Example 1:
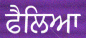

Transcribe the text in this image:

ਫੈਲਿਆ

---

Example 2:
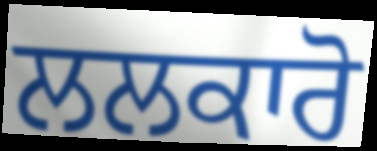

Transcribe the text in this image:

ਲਲਕਾਰੋ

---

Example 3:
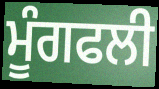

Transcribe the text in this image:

ਮੂੰਗਫਲੀ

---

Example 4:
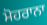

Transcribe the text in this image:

ਮੋਹਰਾਨਾ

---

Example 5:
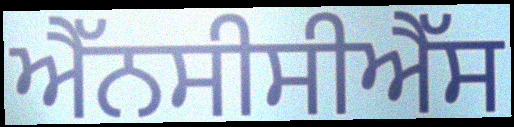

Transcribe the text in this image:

ਐੱਨਸੀਸੀਐੱਸ